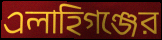
এলাহিগঞ্জের